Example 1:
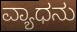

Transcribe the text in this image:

ವ್ಯಾಧನು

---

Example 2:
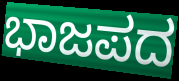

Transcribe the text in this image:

ಭಾಜಪದ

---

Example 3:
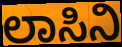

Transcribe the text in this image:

ಲಾಸಿನಿ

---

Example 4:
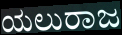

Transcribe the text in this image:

ಯಲುರಾಜ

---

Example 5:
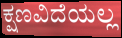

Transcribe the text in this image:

ಕ್ಷಣವಿದೆಯಲ್ಲ